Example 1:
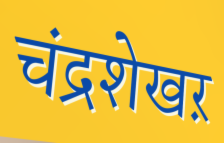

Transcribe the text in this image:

चंद्रशेखऱ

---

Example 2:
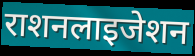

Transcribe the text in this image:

राशनलाइजेशन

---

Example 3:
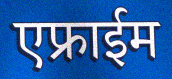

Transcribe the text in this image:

एफ्राईम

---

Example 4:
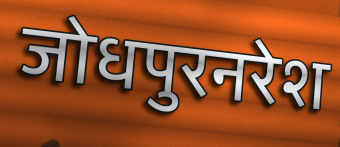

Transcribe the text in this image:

जोधपुरनरेश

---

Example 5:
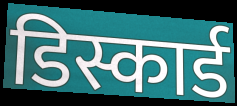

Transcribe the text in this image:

डिस्कार्ड